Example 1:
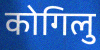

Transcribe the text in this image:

कोगिलु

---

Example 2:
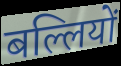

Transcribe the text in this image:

बल्लियों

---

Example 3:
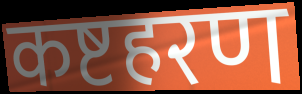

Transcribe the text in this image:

कष्टहरण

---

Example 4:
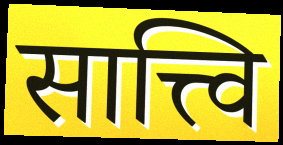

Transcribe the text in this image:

सात्त्वि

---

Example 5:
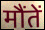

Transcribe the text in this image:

मौंतें